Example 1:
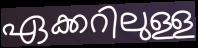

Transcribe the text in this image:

ഏക്കറിലുള്ള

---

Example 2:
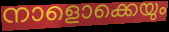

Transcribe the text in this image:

നാളൊക്കെയും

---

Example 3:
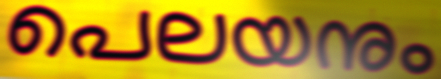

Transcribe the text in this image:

പെലയനും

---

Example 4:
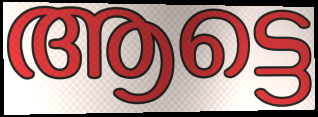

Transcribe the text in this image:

ആട്ടെ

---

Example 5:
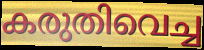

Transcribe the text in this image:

കരുതിവെച്ച